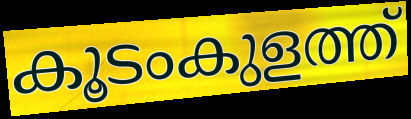
കൂടംകുളത്ത്